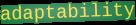
adaptability